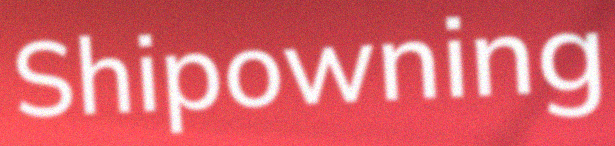
Shipowning